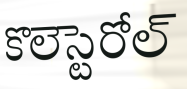
కొలెస్టెరోల్